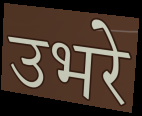
उभरे